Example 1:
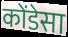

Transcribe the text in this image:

कोंडेसा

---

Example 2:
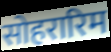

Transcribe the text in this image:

सोहरारिम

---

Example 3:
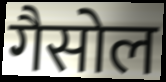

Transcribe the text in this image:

गैसोल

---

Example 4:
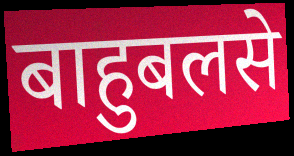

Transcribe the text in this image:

बाहुबलसे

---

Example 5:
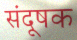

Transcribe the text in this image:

संदूषक